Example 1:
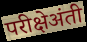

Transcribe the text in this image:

परीक्षेअंती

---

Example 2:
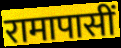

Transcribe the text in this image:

रामापासीं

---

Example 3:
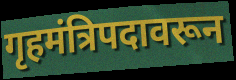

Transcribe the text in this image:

गृहमंत्रिपदावरून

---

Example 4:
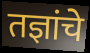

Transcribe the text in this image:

तज्ञांचे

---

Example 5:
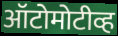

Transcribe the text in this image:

ऑटोमोटीव्ह